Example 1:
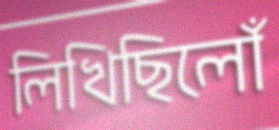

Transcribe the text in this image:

লিখিছিলোঁ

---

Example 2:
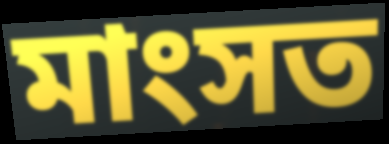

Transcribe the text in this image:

মাংসত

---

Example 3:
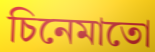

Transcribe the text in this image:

চিনেমাতো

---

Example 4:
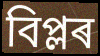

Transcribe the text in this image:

বিপ্লৰ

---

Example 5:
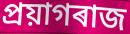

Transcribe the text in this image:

প্ৰয়াগৰাজ